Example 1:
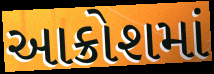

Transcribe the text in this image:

આક્રોશમાં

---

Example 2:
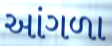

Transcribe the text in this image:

આંગળા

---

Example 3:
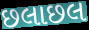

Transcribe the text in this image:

છલાછલ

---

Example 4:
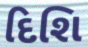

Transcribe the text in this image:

દિશિ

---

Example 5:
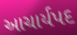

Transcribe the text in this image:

આચાર્યપદ